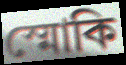
স্মোকি